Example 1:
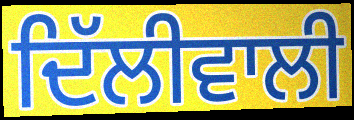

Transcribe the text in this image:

ਦਿੱਲੀਵਾਲੀ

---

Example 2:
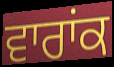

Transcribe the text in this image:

ਵਾਰਾਂਕ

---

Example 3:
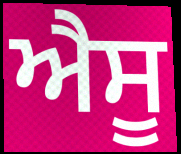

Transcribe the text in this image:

ਐਸੂ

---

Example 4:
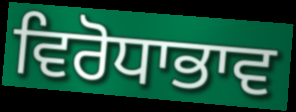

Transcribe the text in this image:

ਵਿਰੋਧਾਭਾਵ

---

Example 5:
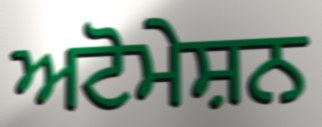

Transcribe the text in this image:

ਅਟੋਮੇਸ਼ਨ